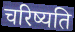
चरिष्यति